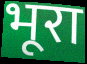
भूरा